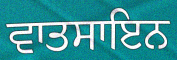
ਵਾਤਸਾਇਨ